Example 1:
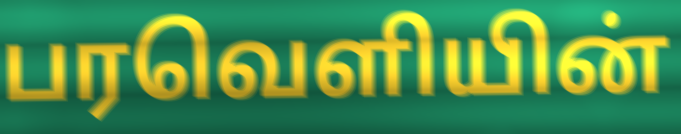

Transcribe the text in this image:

பரவெளியின்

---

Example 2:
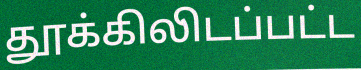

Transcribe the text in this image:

தூக்கிலிடப்பட்ட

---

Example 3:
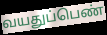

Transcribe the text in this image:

வயதுப்பெண்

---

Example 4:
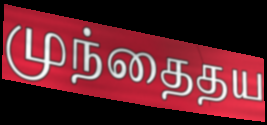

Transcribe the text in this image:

முந்தைதய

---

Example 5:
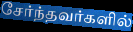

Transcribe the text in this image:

சேர்ந்தவர்களில்